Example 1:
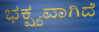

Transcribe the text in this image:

ಭಕ್ಷ್ಯವಾಗಿದೆ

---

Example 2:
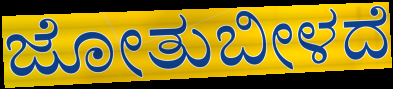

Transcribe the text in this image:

ಜೋತುಬೀಳದೆ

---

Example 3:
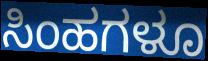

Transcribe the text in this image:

ಸಿಂಹಗಳೂ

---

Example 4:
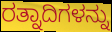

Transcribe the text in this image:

ರತ್ನಾದಿಗಳನ್ನು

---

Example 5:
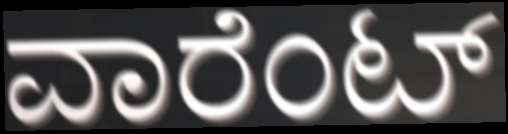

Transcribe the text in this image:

ವಾರೆಂಟ್